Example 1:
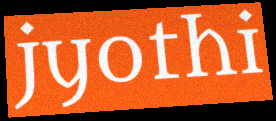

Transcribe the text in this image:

jyothi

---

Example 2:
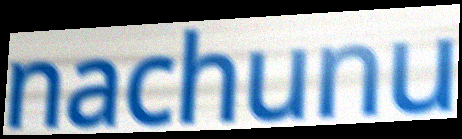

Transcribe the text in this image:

nachunu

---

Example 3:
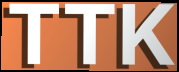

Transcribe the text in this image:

TTK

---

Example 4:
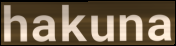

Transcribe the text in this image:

hakuna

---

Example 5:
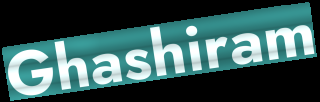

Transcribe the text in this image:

Ghashiram